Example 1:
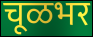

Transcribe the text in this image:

चूळभर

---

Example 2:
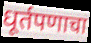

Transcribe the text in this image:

धूर्तपणाचा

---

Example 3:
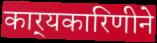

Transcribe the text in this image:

कार्यकारिणीने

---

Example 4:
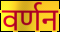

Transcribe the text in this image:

वर्णन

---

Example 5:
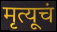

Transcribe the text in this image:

मृत्यूचं